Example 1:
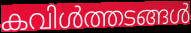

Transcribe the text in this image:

കവിൾത്തടങ്ങൾ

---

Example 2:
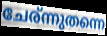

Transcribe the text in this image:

ചേര്ന്നുതന്നെ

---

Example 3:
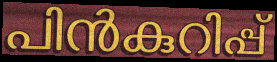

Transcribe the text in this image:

പിൻകുറിപ്പ്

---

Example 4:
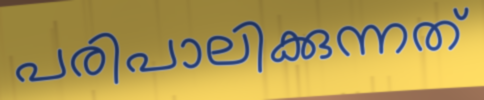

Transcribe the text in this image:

പരിപാലിക്കുന്നത്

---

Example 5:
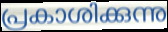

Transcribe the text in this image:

പ്രകാശിക്കുന്നു